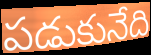
పడుకునేది